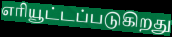
எரியூட்டப்படுகிறது